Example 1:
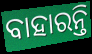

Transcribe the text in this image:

ବାହାରନ୍ତି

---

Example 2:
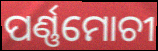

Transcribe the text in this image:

ପର୍ଣ୍ଣମୋଚୀ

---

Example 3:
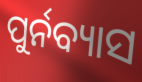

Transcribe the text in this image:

ପୁର୍ନବ୍ୟାସ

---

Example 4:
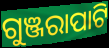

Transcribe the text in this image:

ଗୁଞ୍ଜରାପାଟି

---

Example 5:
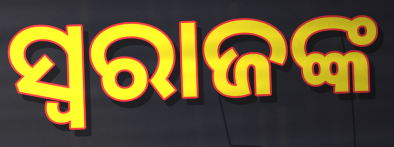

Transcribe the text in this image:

ସ୍ୱରାଜଙ୍କ